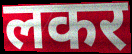
लकर